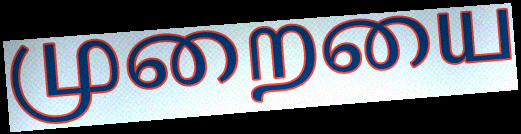
முறையை